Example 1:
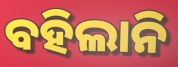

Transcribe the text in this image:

ବହିଲାନି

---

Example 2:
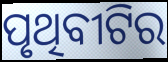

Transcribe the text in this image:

ପୃଥିବୀଟିର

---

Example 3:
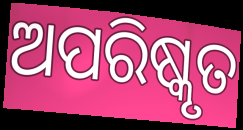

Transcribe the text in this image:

ଅପରିଷ୍କୃତ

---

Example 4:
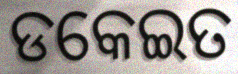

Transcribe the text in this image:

ଡକେଇତ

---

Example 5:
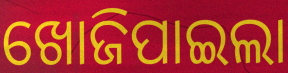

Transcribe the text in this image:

ଖୋଜିପାଇଲା